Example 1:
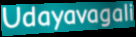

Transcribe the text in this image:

Udayavagali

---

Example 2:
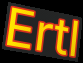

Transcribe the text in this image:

Ertl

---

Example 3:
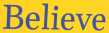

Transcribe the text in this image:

Believe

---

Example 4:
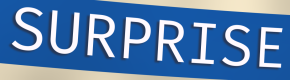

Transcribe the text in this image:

SURPRISE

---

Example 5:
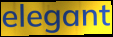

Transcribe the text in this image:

elegant